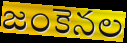
జంకెనల